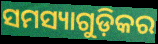
ସମସ୍ୟାଗୁଡ଼ିକର